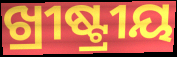
ଖ୍ରୀଷ୍ଟ୍ରୀୟ